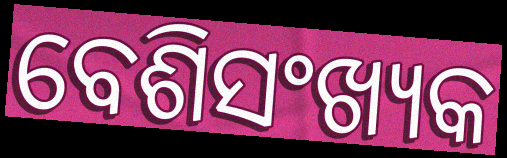
ବେଶିସଂଖ୍ୟକ